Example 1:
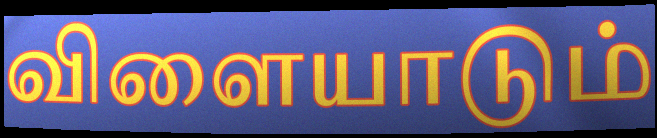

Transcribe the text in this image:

விளையாடும்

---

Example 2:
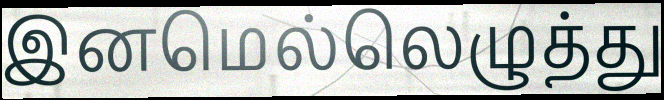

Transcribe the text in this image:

இனமெல்லெழுத்து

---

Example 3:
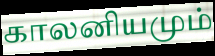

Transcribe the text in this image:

காலனியமும்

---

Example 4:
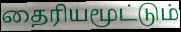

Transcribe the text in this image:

தைரியமூட்டும்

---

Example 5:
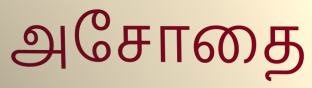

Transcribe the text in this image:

அசோதை